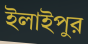
ইলাইপুর